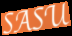
SASU